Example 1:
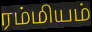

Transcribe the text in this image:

ரம்மியம்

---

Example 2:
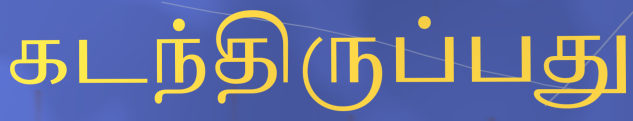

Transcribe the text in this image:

கடந்திருப்பது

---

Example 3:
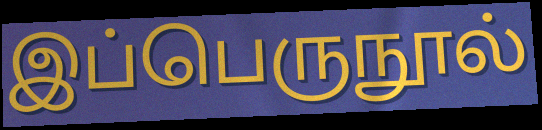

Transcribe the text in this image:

இப்பெருநூல்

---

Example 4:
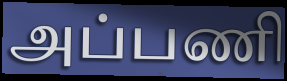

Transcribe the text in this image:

அப்பணி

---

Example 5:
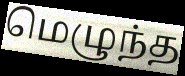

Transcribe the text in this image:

மெழுந்த